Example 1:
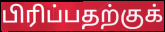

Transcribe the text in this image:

பிரிப்பதற்குக்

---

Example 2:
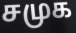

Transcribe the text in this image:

சமுக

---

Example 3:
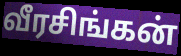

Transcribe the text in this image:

வீரசிங்கன்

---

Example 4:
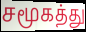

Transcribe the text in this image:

சமூகத்து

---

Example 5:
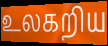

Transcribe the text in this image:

உலகறிய